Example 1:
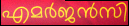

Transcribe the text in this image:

എമർജൻസി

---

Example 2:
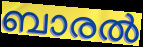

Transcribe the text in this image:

ബാരൽ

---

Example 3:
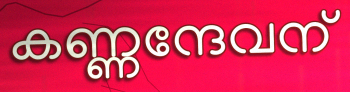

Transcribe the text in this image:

കണ്ണന്ദേവന്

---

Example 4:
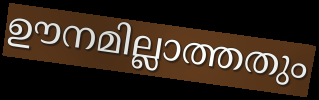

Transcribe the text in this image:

ഊനമില്ലാത്തതും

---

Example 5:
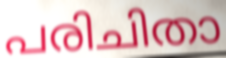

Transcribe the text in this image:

പരിചിതാ